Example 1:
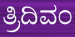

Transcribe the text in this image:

ತ್ರಿದಿವಂ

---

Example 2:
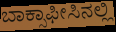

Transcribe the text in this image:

ಬಾಕ್ಸಾಫೀಸಿನಲ್ಲಿ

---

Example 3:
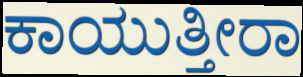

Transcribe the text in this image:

ಕಾಯುತ್ತೀರಾ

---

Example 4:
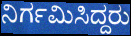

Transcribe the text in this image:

ನಿರ್ಗಮಿಸಿದ್ದರು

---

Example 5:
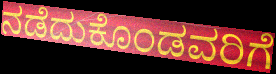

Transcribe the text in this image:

ನಡೆದುಕೊಂಡವರಿಗೆ